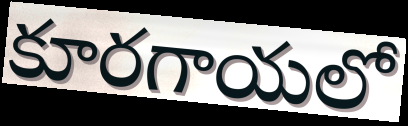
కూరగాయలో